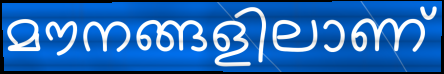
മൗനങ്ങളിലാണ്